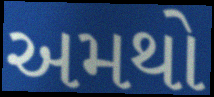
અમથો